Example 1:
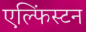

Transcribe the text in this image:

एल्फिंस्टन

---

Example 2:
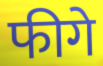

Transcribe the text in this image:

फीगे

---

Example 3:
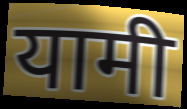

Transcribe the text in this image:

यामी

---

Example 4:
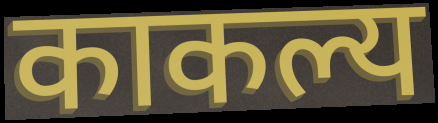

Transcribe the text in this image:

काकल्य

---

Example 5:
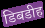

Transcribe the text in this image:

डिबडीह